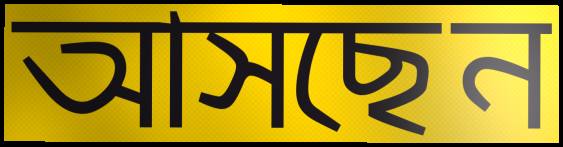
আসছেন